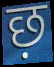
छ़